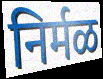
निर्मळ